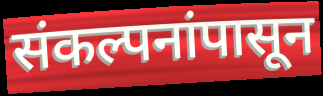
संकल्पनांपासून